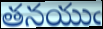
తనయుఁ